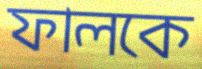
ফালকে